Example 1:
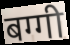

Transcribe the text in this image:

बग्गी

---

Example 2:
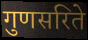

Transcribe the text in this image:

गुणसरिते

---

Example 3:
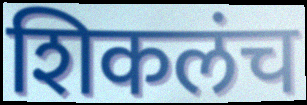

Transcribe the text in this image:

शिकलंच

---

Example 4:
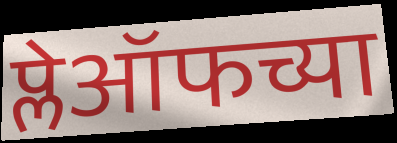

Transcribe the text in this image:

प्लेऑफच्या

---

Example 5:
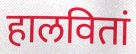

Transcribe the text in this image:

हालवितां